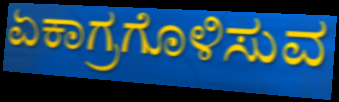
ಏಕಾಗ್ರಗೊಳಿಸುವ